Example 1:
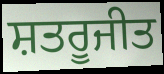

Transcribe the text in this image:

ਸ਼ਤਰੂਜੀਤ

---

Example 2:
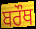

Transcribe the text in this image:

ਬਰੌਥ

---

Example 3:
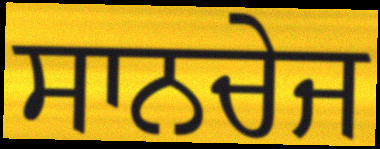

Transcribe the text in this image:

ਸਾਨਚੇਜ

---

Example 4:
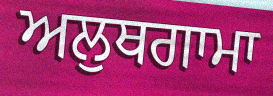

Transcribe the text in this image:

ਅਲੁਥਗਾਮਾ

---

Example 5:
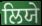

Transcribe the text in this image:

ਲਿਯੇ